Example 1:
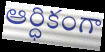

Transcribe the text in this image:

ఆర్ధికంగా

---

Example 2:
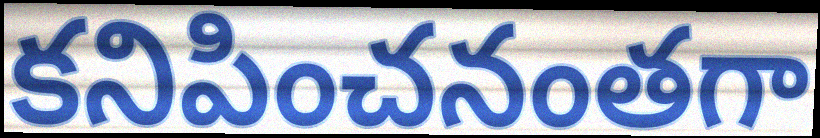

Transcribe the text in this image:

కనిపించనంతగా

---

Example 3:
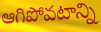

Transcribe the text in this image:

ఆగిపోవటాన్ని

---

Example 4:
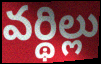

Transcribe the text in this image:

వర్థిల్లు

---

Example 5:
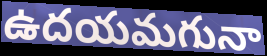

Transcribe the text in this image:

ఉదయమగునా